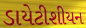
ડાયેટીશીયન